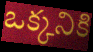
ఒక్కనికి